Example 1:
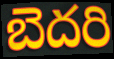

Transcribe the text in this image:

బెదరి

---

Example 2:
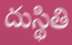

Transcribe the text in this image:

దుస్థితి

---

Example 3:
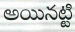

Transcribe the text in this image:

అయినట్టి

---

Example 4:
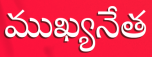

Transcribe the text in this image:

ముఖ్యనేత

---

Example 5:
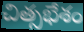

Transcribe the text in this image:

చిత్సభేశం